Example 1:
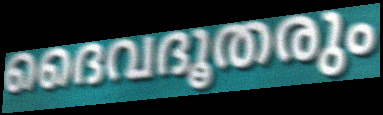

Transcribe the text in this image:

ദൈവദൂതരും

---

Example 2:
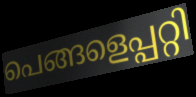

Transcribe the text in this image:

പെങ്ങളെപ്പറ്റി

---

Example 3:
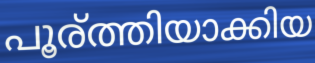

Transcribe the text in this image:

പൂര്ത്തിയാക്കിയ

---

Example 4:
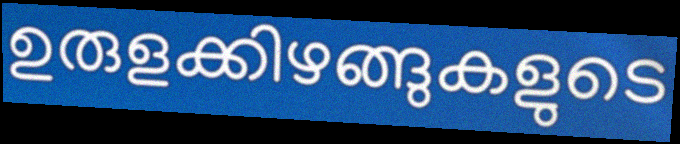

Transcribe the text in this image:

ഉരുളക്കിഴങ്ങുകളുടെ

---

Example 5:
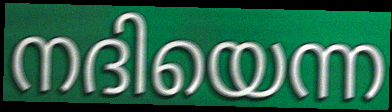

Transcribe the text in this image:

നദിയെന്ന